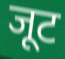
जूट